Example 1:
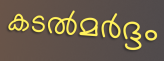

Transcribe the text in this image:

കടൽമർദ്ദം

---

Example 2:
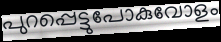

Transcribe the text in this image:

പുറപ്പെട്ടുപോകുവോളം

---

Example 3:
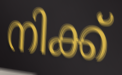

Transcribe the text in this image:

നിക്ക്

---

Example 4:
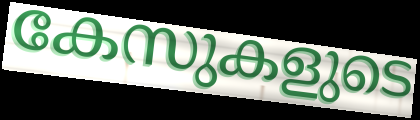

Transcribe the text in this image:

കേസുകളുടെ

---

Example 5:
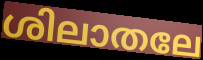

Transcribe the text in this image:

ശിലാതലേ